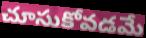
చూసుకోవడమే